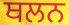
ਥਲਨ